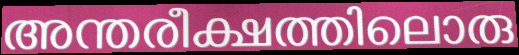
അന്തരീക്ഷത്തിലൊരു